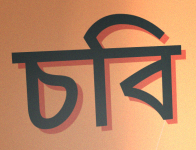
চবি